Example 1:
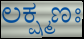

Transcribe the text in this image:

ಲಕ್ಷ್ಮಣಃ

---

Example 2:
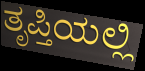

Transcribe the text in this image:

ತೃಪ್ತಿಯಲ್ಲಿ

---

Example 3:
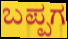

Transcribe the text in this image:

ಬಪ್ಪಗ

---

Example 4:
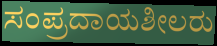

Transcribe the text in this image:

ಸಂಪ್ರದಾಯಶೀಲರು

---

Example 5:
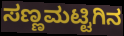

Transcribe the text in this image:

ಸಣ್ಣಮಟ್ಟಿಗಿನ